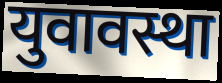
युवावस्था